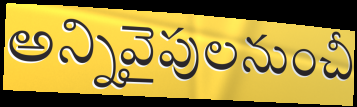
అన్నివైపులనుంచీ